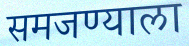
समजण्याला